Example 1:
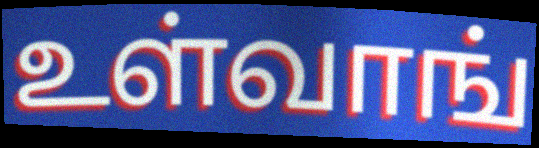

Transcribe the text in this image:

உள்வாங்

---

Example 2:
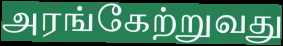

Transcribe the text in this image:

அரங்கேற்றுவது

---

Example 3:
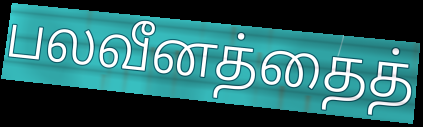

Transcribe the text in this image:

பலவீனத்தைத்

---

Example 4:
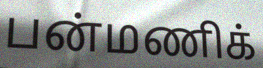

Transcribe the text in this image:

பன்மணிக்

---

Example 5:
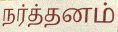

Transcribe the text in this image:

நர்த்தனம்